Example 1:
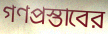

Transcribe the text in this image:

গণপ্রস্তাবের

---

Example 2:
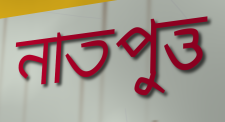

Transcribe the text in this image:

নাতপুত্ত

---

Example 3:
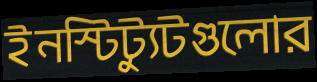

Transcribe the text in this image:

ইনস্টিট্যুটগুলোর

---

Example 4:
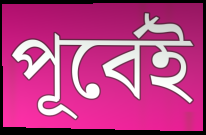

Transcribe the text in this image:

পূর্বেই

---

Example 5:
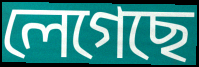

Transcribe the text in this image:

লেগেছে